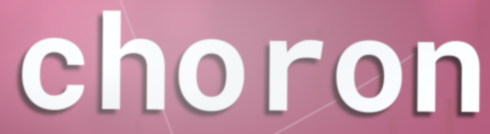
choron